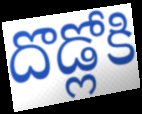
దొడ్లోకి